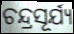
ଚନ୍ଦ୍ରସୂର୍ଯ୍ୟ